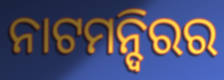
ନାଟମନ୍ଦିରର